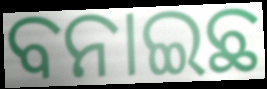
ବନାଇଛ